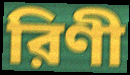
রিণী